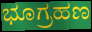
ಭೂಗ್ರಹಣ